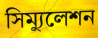
সিম্যুলেশন